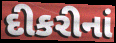
દીકરીનાં